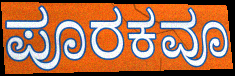
ಪೂರಕವೂ